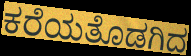
ಕರೆಯತೊಡಗಿದ